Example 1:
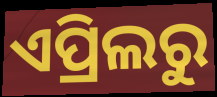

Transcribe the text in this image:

ଏପ୍ରିଲରୁ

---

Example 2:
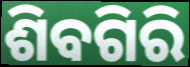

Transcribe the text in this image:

ଶିବଗିରି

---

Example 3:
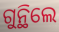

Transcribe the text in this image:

ଗୁନ୍ଥିଲେ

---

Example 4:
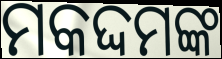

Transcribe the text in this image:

ମକଦ୍ଦମଙ୍କ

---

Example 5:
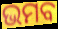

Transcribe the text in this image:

ଭମବ